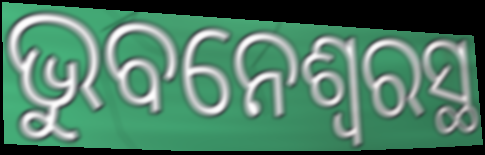
ଭୁବନେଶ୍ଵରସ୍ଥ